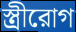
স্ত্রীরোগ